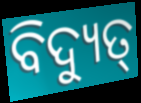
ବିଦ୍ୟୁତ୍